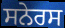
ਸਨੇਰਸ